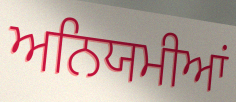
ਅਨਿਯਮੀਆਂ